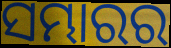
ସମ୍ଭାରର